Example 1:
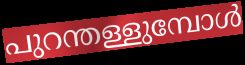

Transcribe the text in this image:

പുറന്തള്ളുമ്പോൾ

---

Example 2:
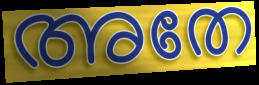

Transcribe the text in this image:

അതേ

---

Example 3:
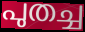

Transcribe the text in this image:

പുതച്ച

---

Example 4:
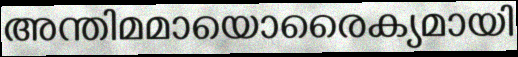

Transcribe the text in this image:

അന്തിമമായൊരൈക്യമായി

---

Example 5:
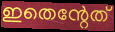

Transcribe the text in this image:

ഇതെന്റേത്